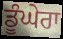
ਡੂੰਘੇਰਾ